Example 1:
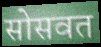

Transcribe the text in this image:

सोसवत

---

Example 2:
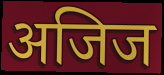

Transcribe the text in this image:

अजिज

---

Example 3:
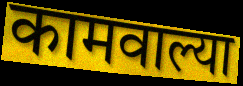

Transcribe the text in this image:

कामवाल्या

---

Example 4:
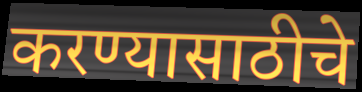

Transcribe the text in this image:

करण्यासाठीचे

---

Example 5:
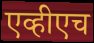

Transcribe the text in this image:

एव्हीएच